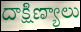
దాక్షిణ్యాలు